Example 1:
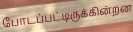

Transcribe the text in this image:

போடப்பட்டிருக்கின்றன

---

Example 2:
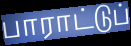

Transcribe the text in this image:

பாராட்டுப்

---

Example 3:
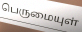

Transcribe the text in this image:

பெருமையுள்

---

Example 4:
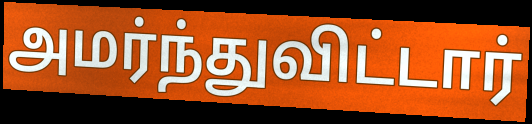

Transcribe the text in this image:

அமர்ந்துவிட்டார்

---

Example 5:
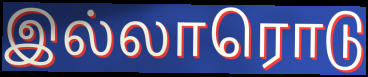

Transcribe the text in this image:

இல்லாரொடு